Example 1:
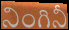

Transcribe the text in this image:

నింగినీ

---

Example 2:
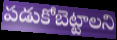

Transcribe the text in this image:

పడుకోబెట్టాలని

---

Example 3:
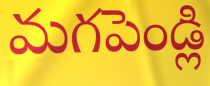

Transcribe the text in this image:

మగపెండ్లి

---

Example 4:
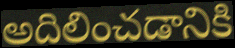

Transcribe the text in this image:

అదిలించడానికి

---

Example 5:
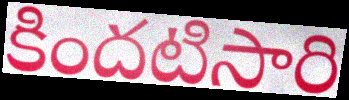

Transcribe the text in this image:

కిందటిసారి